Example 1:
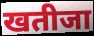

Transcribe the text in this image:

खतीजा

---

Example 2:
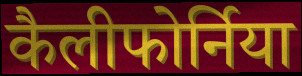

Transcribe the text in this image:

कैलीफोर्निया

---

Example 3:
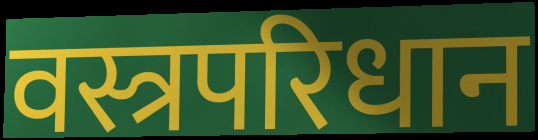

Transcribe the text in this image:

वस्त्रपरिधान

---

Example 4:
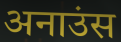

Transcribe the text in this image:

अनाउंस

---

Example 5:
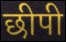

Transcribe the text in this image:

छीपी